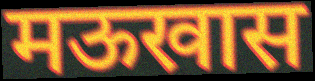
मऊखास